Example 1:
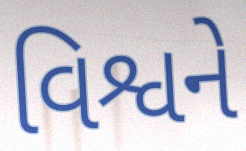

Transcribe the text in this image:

વિશ્વને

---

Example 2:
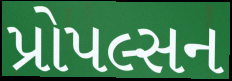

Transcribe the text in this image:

પ્રોપલ્સન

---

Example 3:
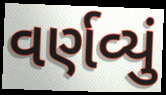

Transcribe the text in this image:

વર્ણવ્યું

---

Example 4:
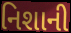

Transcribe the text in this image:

નિશાની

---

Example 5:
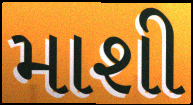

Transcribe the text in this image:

માશી